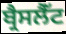
ਬ੍ਰੈਸਲੈੱਟ